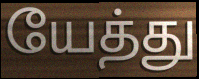
யேத்து